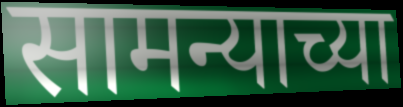
सामन्याच्या